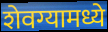
शेवग्यामध्ये